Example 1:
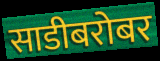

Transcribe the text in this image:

साडीबरोबर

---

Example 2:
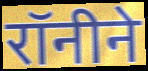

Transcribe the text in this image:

रॉनीने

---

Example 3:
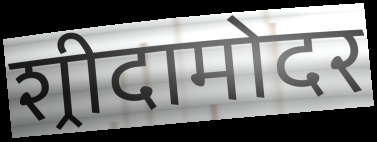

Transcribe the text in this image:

श्रीदामोदर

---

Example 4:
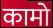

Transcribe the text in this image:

कामो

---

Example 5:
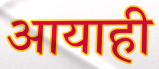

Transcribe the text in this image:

आयाही